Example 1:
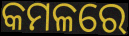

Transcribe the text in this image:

କମଳରେ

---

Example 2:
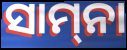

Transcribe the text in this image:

ସାମ୍‌ନା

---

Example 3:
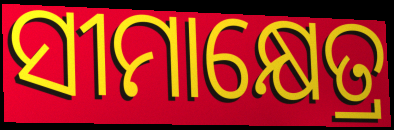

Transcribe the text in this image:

ସୀମାକ୍ଷେତ୍ର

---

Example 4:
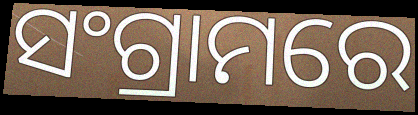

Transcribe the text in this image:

ସଂଗ୍ରାମରେ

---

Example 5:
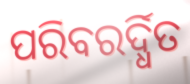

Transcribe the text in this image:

ପରିବରର୍ଦ୍ଧିତ